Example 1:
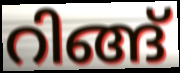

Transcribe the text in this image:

റിങ്ങ്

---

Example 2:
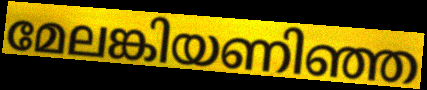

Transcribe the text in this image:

മേലങ്കിയണിഞ്ഞ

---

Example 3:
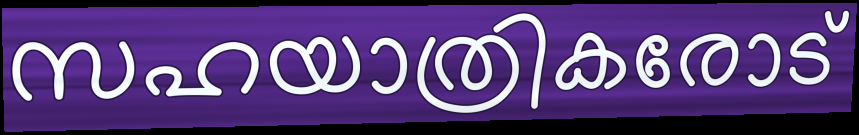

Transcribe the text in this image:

സഹയാത്രികരോട്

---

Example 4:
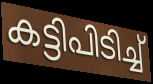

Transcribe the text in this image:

കട്ടിപിടിച്ച്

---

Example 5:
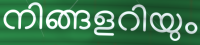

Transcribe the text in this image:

നിങ്ങളറിയും